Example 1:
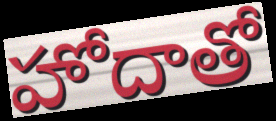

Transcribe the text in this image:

హోదాతో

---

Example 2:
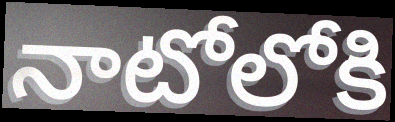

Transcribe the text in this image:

నాటోలోకి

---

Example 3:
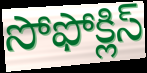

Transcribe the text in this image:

సోఫోక్లిస్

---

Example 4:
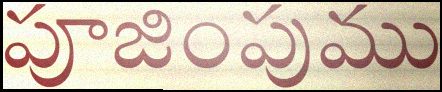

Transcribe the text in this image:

పూజింపుము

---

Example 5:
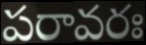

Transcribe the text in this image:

పరావరః